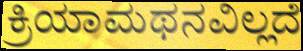
ಕ್ರಿಯಾಮಥನವಿಲ್ಲದೆ